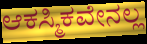
ಆಕಸ್ಮಿಕವೇನಲ್ಲ